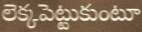
లెక్కపెట్టుకుంటూ